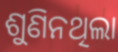
ଶୁଣିନଥିଲା